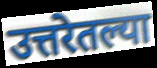
उत्तरेतल्या